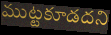
ముట్టకూడదని